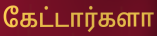
கேட்டார்களா